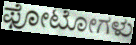
ಫೋಟೋಗಳು